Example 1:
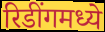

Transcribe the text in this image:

रिडींगमध्ये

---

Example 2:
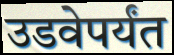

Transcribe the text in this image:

उडवेपर्यंत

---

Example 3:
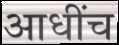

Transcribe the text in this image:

आधींच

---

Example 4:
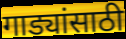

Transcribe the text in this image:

गाड्यांसाठी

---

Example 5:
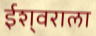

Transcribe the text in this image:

ईश्वराला